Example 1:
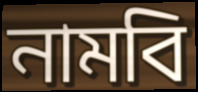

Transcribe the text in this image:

নামবি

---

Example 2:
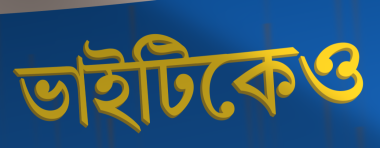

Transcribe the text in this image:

ভাইটিকেও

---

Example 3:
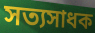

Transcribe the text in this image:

সত্যসাধক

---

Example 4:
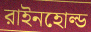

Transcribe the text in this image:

রাইনহোল্ড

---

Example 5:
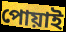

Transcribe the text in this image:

পোয়াই